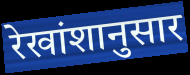
रेखांशानुसार